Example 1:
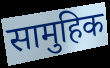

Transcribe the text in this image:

सामुहिक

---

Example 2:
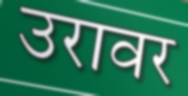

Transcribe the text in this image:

उरावर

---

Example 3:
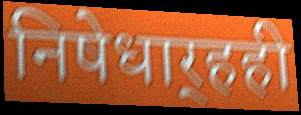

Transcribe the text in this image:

निषेधार्हही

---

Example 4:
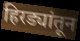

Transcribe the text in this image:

हिरड्यांतून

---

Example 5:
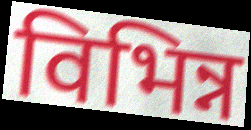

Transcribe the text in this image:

विभिन्न